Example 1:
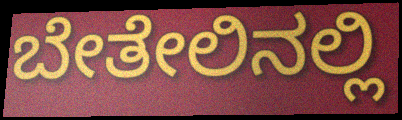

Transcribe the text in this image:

ಬೇತೇಲಿನಲ್ಲಿ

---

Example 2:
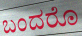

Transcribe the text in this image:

ಬಂದರೊ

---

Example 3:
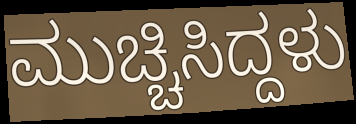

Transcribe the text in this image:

ಮುಚ್ಚಿಸಿದ್ದಳು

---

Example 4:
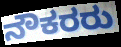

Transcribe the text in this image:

ನೌಕರರು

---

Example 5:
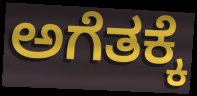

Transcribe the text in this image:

ಅಗೆತಕ್ಕೆ